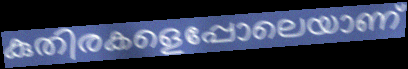
കുതിരകളെപ്പോലെയാണ്